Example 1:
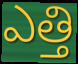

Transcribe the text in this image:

ఎత్తి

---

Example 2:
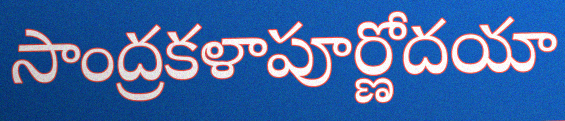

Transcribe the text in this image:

సాంద్రకళాపూర్ణోదయా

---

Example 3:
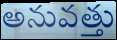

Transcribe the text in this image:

అనువత్తు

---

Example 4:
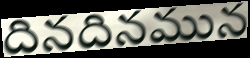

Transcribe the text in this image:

దినదినమున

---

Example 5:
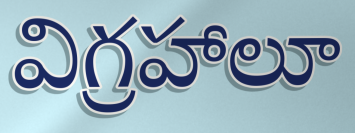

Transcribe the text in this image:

విగ్రహాలూ